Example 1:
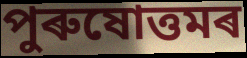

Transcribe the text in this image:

পুৰুষোত্তমৰ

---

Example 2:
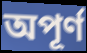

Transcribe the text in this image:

অপূৰ্ণ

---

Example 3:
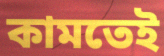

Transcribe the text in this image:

কামতেই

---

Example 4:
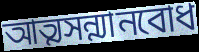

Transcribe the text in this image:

আত্মসন্মানবোধ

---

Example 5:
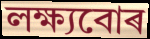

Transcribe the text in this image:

লক্ষ্যবোৰ